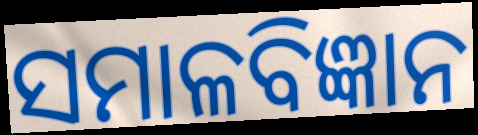
ସମାଳବିଜ୍ଞାନ